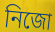
নিজো